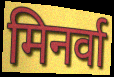
मिनर्वा